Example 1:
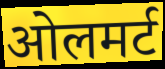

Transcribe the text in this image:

ओलमर्ट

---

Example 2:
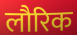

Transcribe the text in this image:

लौरिक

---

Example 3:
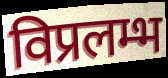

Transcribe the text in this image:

विप्रलम्भ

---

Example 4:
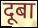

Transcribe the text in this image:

दूबा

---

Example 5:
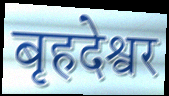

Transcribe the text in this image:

बृहदेश्वर